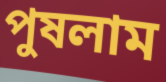
পুষলাম